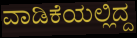
ವಾಡಿಕೆಯಲ್ಲಿದ್ದ